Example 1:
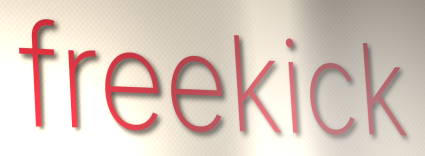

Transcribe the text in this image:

freekick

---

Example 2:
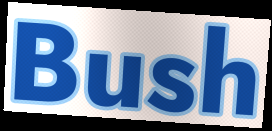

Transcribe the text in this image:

Bush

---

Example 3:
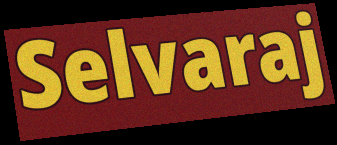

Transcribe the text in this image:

Selvaraj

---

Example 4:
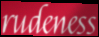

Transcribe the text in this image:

rudeness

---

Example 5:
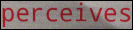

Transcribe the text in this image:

perceives